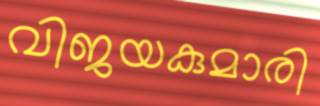
വിജയകുമാരി